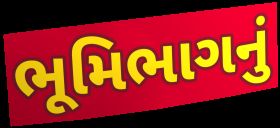
ભૂમિભાગનું